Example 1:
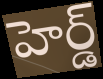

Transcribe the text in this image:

హెర్డ్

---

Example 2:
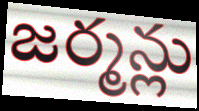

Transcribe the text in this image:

జర్మన్లు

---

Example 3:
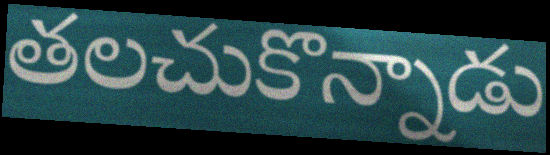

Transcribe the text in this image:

తలచుకొన్నాడు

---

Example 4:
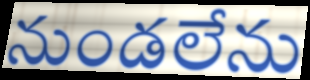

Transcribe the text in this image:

నుండలేను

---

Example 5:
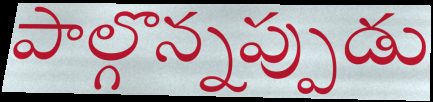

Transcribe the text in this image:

పాల్గొన్నప్పుడు